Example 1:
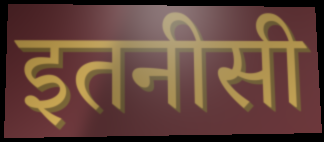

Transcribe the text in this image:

इतनीसी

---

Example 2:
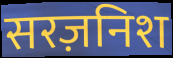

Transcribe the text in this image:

सरज़निश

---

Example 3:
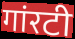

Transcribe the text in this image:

गांरटी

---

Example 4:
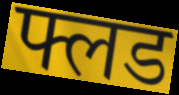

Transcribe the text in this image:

फ्लड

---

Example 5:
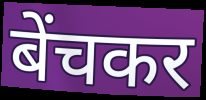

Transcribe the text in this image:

बेंचकर